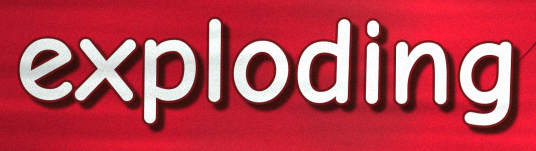
exploding